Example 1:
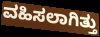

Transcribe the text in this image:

ವಹಿಸಲಾಗಿತ್ತು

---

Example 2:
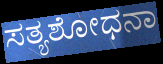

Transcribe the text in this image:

ಸತ್ಯಶೋಧನಾ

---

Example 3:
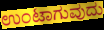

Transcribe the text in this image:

ಉಂಟಾಗುವುದು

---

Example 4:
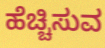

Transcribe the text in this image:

ಹೆಚ್ಚಿಸುವ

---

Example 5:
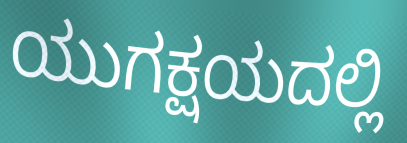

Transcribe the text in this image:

ಯುಗಕ್ಷಯದಲ್ಲಿ